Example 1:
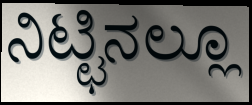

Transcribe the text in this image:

ನಿಟ್ಟಿನಲ್ಲೂ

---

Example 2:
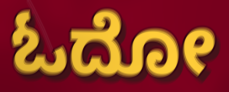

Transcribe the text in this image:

ಓದೋ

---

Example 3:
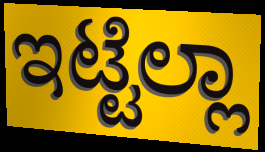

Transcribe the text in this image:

ಇಟ್ಟೆಲ್ಲಾ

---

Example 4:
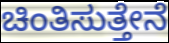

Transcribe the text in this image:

ಚಿಂತಿಸುತ್ತೇನೆ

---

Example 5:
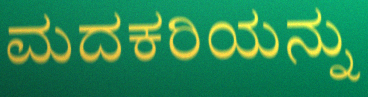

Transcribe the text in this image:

ಮದಕರಿಯನ್ನು